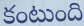
కంటుంది